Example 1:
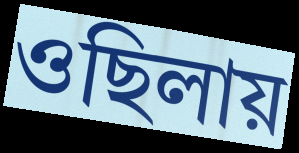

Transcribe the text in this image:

ওছিলায়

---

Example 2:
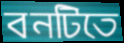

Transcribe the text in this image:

বনটিতে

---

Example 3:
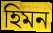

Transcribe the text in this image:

হিমন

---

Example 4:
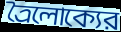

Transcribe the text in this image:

ত্রৈলোক্যের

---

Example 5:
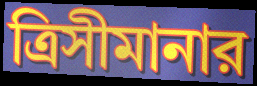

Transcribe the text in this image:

ত্রিসীমানার